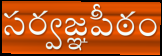
సర్వజ్ఞపీఠం